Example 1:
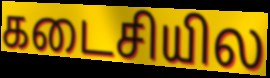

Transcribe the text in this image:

கடைசியில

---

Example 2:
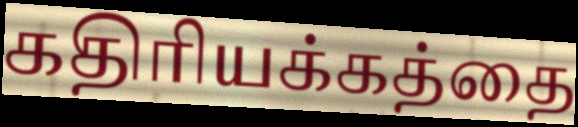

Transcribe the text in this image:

கதிரியக்கத்தை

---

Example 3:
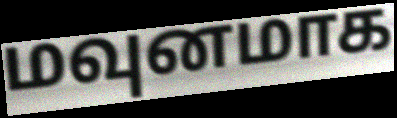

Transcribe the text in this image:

மவுனமாக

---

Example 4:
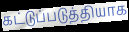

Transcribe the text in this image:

கட்டுப்படுத்தியாக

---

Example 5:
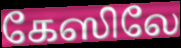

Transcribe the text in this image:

கேஸிலே